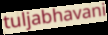
tuljabhavani